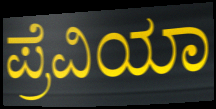
ಪ್ರೆವಿಯಾ